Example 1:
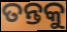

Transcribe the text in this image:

ତନ୍ତକୁ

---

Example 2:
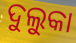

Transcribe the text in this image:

ଦୁଲୁକା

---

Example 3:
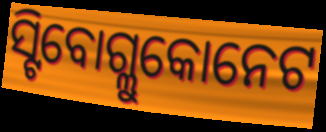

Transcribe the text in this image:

ସ୍ଟିବୋଗ୍ଲୁକୋନେଟ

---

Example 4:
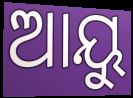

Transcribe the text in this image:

ଆୟୁ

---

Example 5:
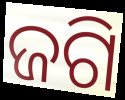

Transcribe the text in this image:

ଜଗି